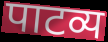
पाटव्य